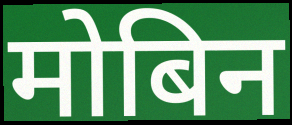
मोबिन